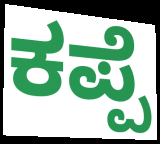
ಕಪ್ಪೆ